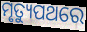
ମୃତ୍ୟୁପଥରେ